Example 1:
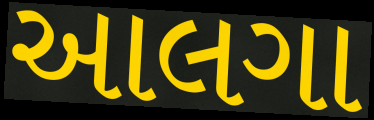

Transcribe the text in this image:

આલગા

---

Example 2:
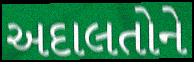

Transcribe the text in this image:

અદાલતોને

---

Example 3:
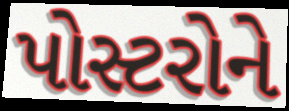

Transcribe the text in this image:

પોસ્ટરોને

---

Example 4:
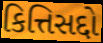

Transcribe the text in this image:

કિત્તિસદ્દો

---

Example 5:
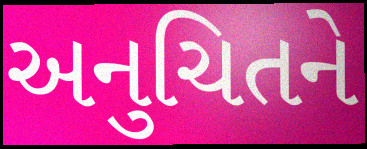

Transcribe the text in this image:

અનુચિતને